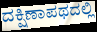
ದಕ್ಷಿಣಾಪಥದಲ್ಲಿ